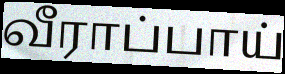
வீராப்பாய்